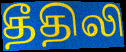
தீதிலி